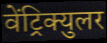
वेंट्रिक्युलर